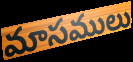
మాసములు